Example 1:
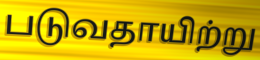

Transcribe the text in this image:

படுவதாயிற்று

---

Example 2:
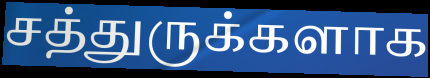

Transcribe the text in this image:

சத்துருக்களாக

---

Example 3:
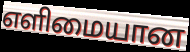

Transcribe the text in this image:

எளிமையான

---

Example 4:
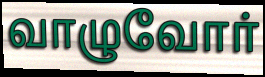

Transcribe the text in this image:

வாழுவோர்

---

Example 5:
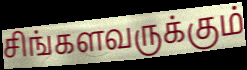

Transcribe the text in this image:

சிங்களவருக்கும்